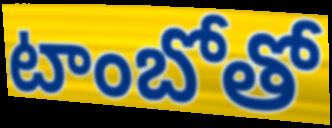
టాంబోతో